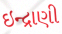
ઇન્દ્રાણી